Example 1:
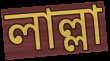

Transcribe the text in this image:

লাল্লা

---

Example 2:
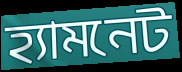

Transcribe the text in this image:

হ্যামনেট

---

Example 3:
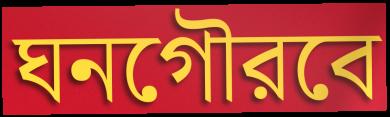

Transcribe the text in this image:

ঘনগৌরবে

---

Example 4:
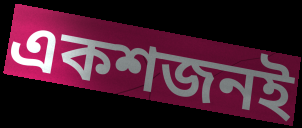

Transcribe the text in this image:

একশজনই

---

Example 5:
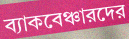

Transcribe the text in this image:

ব্যাকবেঞ্চারদের